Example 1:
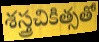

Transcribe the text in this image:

శస్త్రచికిత్సతో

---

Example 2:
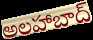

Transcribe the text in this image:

అలహాబాద్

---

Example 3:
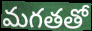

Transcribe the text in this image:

మగతతో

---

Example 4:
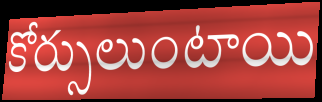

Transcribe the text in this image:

కోర్సులుంటాయి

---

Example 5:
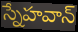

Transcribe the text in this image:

స్నేహవాన్